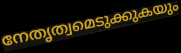
നേതൃത്വമെടുക്കുകയും